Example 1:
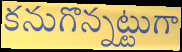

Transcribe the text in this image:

కనుగొన్నట్టుగా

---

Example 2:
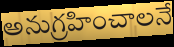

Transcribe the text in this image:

అనుగ్రహించాలనే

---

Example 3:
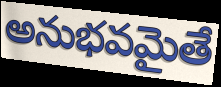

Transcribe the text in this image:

అనుభవమైతే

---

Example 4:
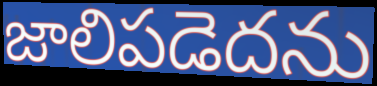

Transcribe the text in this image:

జాలిపడెదను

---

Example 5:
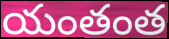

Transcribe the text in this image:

యంతంత